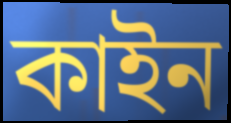
কাইন